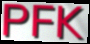
PFK